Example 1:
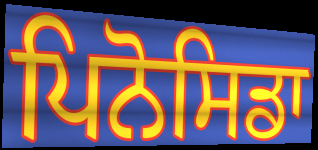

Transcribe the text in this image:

ਪਿਨੋਸਿਡਾ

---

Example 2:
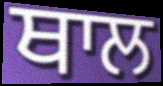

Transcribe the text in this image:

ਥਾਲ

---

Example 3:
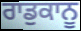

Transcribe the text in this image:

ਰਾਡੁਕਾਨੂ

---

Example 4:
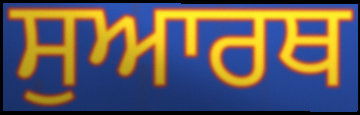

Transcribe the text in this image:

ਸੁਆਰਥ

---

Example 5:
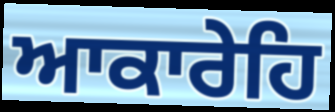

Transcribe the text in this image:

ਆਕਾਰੇਹਿ